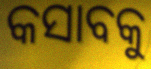
କସାବକୁ